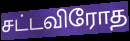
சட்டவிரோத